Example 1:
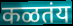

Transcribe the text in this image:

कळतंय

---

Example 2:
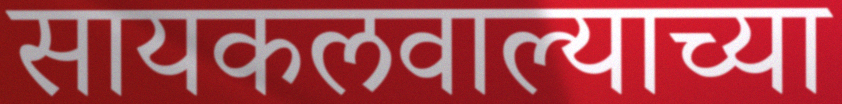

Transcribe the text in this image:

सायकलवाल्याच्या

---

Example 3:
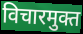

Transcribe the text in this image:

विचारमुक्त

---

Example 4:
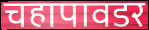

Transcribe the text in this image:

चहापावडर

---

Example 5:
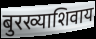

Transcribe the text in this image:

बुरख्याशिवाय